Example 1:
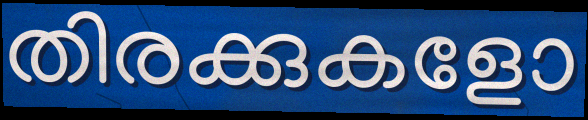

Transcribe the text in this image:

തിരക്കുകളോ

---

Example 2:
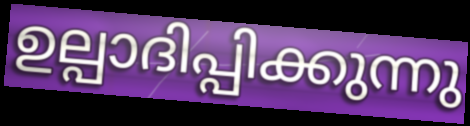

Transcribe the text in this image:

ഉല്പാദിപ്പിക്കുന്നു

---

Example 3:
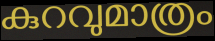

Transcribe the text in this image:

കുറവുമാത്രം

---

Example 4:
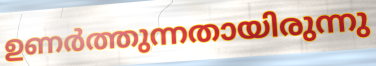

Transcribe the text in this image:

ഉണർത്തുന്നതായിരുന്നു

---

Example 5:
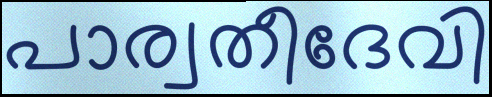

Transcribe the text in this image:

പാര്വതീദേവി